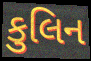
કુલિન